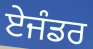
ਏਜੰਡਰ